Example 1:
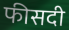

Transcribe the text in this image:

फीसदी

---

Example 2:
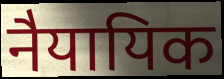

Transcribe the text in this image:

नैयायिक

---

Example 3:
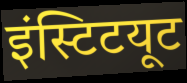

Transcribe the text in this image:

इंस्टिटयूट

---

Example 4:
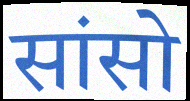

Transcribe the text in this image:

सांसो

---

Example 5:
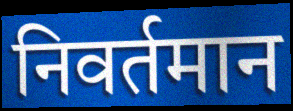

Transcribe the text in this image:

निवर्तमान